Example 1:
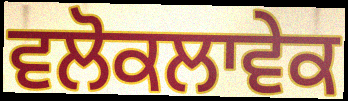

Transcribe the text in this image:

ਵਲੋਕਲਾਵੇਕ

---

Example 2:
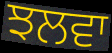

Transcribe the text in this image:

ਝਲਵਾ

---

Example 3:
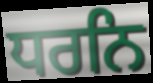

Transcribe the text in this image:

ਧਰਨਿ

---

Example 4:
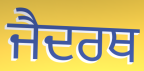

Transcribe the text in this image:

ਜੈਦਰਥ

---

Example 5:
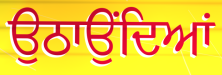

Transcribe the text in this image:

ਉਠਾਉਂਦਿਆਂ